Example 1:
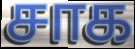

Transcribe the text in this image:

சாக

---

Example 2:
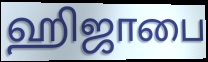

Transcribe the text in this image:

ஹிஜாபை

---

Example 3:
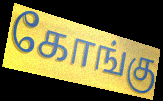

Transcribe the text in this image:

கோங்கு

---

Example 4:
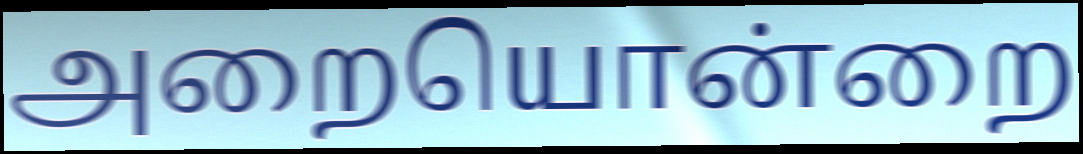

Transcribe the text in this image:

அறையொன்றை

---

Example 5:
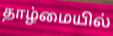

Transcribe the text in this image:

தாழ்மையில்